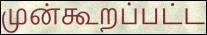
முன்கூறப்பட்ட